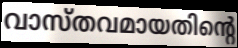
വാസ്തവമായതിന്റെ